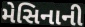
મેસિનાની